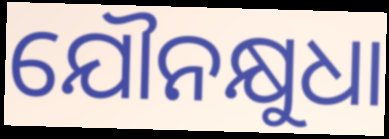
ଯୌନକ୍ଷୁଧା